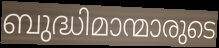
ബുദ്ധിമാന്മാരുടെ